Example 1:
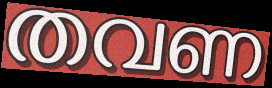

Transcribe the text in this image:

തവണ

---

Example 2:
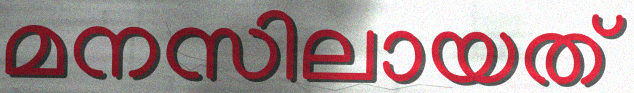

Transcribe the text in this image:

മനസിലായത്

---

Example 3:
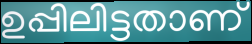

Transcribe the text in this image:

ഉപ്പിലിട്ടതാണ്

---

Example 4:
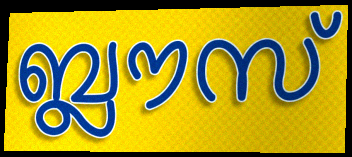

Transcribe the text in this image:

ബ്ലൗസ്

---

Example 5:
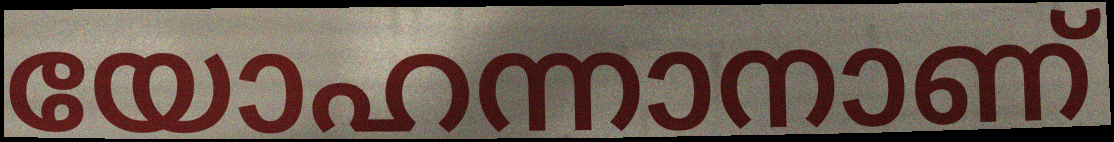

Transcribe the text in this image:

യോഹന്നാനാണ്